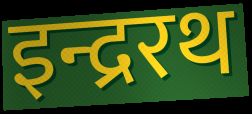
इन्द्ररथ